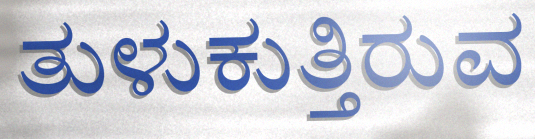
ತುಳುಕುತ್ತಿರುವ